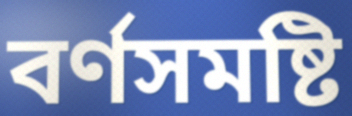
বৰ্ণসমষ্টি